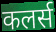
कलर्स